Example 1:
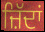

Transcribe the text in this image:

ਜ਼ਿੱਦਾਂ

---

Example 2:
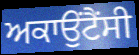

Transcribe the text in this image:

ਅਕਾਉਂਟੈਂਸੀ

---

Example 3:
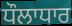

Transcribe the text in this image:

ਧੌਲਾਧਾਰ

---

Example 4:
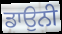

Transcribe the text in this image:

ਡਾਉਨੀ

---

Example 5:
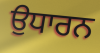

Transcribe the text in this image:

ਉਧਾਰਨ